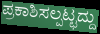
ಪ್ರಕಾಶಿಸಲ್ಪಟ್ಟದ್ದು